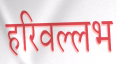
हरिवल्लभ